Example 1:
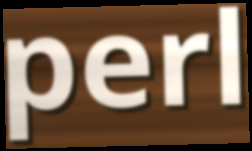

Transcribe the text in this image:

perl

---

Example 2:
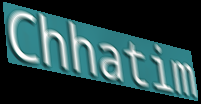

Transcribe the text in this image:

Chhatim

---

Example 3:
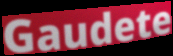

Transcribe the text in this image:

Gaudete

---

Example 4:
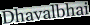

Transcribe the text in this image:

Dhavalbhai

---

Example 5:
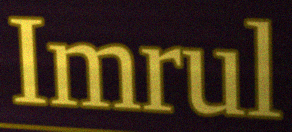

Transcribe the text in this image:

Imrul